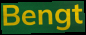
Bengt